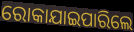
ରୋକାଯାଇପାରିଲେ